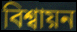
বিশ্বায়ন